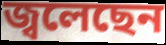
জ্বলেছেন